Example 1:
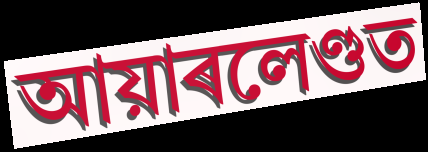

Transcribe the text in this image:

আয়াৰলেণ্ডত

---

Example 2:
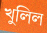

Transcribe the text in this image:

খুলিল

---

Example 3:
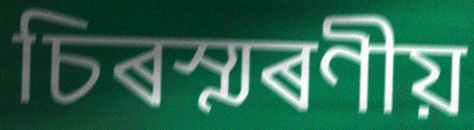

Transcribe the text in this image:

চিৰস্মৰণীয়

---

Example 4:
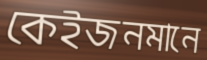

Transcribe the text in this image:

কেইজনমানে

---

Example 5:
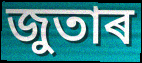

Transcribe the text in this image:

জুতাৰ